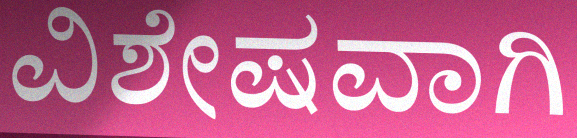
ವಿಶೇಷವಾಗಿ